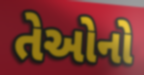
તેઓનો